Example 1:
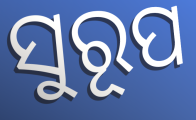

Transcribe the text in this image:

ସୁରୂପ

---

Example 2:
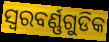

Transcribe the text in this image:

ସ୍ୱରବର୍ଣ୍ଣଗୁଡିକ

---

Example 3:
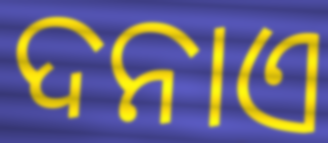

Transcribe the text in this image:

ଦନାଏ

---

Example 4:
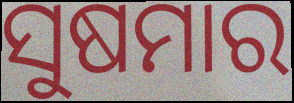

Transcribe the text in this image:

ସୁଷମାର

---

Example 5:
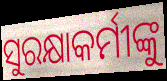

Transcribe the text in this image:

ସୁରକ୍ଷାକର୍ମୀଙ୍କୁ